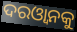
ଦରଓ୍ୱାନକୁ